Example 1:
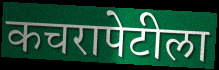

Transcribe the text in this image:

कचरापेटीला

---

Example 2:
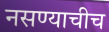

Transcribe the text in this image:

नसण्याचीच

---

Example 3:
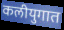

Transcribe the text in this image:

कलीयुगात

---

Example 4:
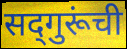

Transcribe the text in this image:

सद्‌गुरूंची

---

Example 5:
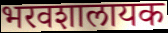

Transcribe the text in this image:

भरवशालायक